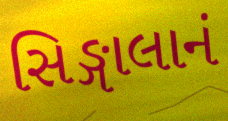
સિઙ્ગાલાનં